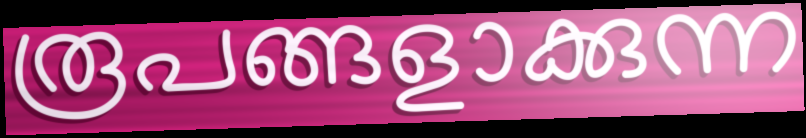
രൂപങ്ങളാക്കുന്ന